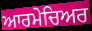
ਆਰਮੇਚਿਅਰ